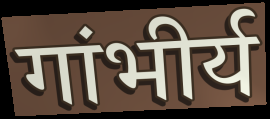
गांभीर्य